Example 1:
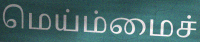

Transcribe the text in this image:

மெய்ம்மைச்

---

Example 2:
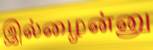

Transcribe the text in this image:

இல்ழைன்னு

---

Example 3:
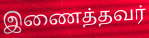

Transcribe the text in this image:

இணைத்தவர்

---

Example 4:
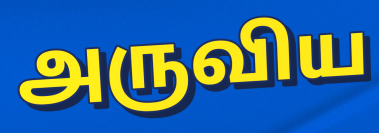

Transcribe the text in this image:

அருவிய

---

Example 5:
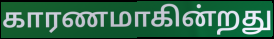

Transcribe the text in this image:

காரணமாகின்றது